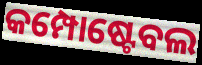
କମ୍ପୋଷ୍ଟେବଲ